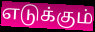
எடுக்கும்